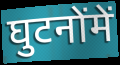
घुटनोंमें